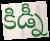
కిడ్నీ